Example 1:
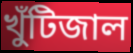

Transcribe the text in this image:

খুঁটিজাল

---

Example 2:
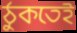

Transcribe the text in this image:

ঠুকতেই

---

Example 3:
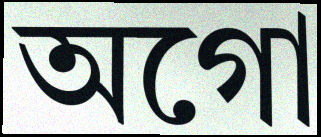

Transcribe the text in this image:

অগো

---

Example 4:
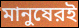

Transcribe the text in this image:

মানুষেরই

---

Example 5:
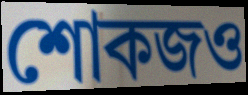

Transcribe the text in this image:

শোকজও